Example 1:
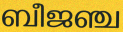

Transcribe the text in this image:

ബീജഞ്ച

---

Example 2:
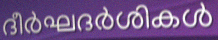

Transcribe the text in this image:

ദീർഘദർശികൾ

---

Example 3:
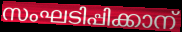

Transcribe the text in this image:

സംഘടിപ്പിക്കാന്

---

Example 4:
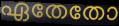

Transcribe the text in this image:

ഏതേതോ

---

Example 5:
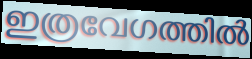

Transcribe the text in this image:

ഇത്രവേഗത്തിൽ